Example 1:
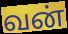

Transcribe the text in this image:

வன்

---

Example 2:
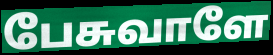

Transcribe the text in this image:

பேசுவாளே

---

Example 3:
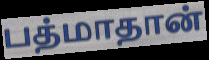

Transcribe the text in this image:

பத்மாதான்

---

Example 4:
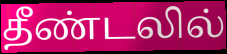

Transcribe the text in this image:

தீண்டலில்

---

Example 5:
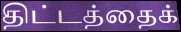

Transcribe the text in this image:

திட்டத்தைக்